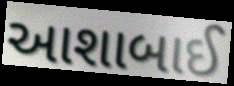
આશાબાઈ